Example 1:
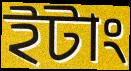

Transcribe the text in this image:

ইটাং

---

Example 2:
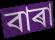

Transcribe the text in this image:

বাৰা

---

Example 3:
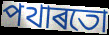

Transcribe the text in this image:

পথাৰতো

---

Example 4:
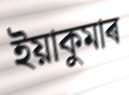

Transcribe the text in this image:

ইয়াকুমাৰ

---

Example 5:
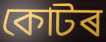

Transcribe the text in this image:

কোটৰ